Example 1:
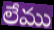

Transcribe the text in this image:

లేము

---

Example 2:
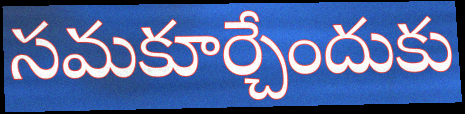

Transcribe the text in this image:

సమకూర్చేందుకు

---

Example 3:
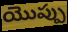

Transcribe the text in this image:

యొప్పు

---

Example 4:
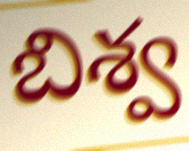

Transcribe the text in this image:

బిశ్వ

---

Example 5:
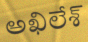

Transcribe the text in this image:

అఖిలేశ్